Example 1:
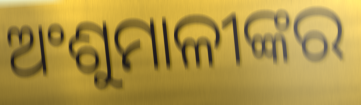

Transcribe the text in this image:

ଅଂଶୁମାଳୀଙ୍କର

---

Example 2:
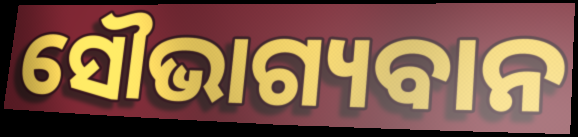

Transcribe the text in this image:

ସୌଭାଗ୍ୟବାନ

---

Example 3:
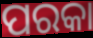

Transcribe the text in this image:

ପରକା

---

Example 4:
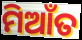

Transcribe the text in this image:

ମିଆଁତ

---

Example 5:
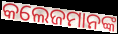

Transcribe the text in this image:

କଲେଜମାନଙ୍କ